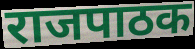
राजपाठक